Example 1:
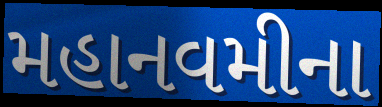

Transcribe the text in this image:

મહાનવમીના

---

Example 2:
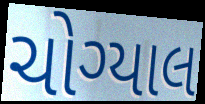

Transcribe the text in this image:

ચોગ્યાલ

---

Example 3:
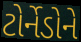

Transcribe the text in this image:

ટોર્નેડોને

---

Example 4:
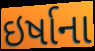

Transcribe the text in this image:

ઇર્ષાના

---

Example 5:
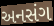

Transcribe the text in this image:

અનસંગ